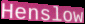
Henslow